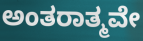
ಅಂತರಾತ್ಮವೇ